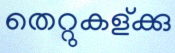
തെറ്റുകള്ക്കു